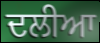
ਦਲੀਆ